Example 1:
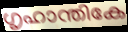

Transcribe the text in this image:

ഗൃഹാന്തികേ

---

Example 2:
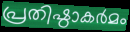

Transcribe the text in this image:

പ്രതിഷ്ഠാകർമം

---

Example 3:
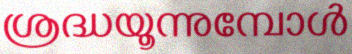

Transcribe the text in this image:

ശ്രദ്ധയൂന്നുമ്പോൾ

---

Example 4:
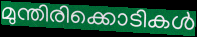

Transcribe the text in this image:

മുന്തിരിക്കൊടികൾ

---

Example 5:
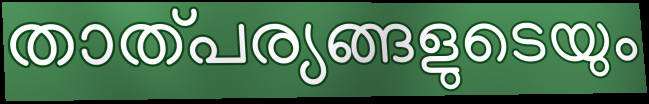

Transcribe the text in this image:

താത്പര്യങ്ങളുടെയും